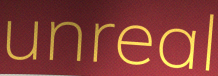
unreal